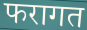
फरागत